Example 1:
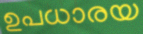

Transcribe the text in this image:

ഉപധാരയ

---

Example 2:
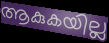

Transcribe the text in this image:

ആകുകയില്ല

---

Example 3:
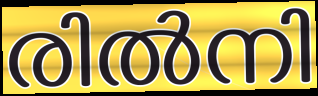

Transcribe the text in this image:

രിൽനി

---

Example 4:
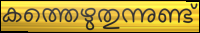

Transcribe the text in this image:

കത്തെഴുതുന്നുണ്ട്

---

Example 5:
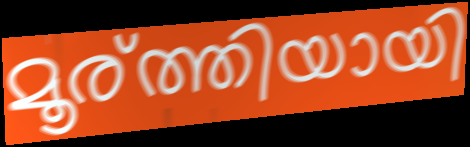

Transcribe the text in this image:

മൂര്ത്തിയായി